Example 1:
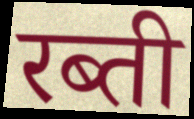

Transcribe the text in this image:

रब्ती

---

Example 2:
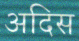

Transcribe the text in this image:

अदिस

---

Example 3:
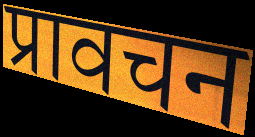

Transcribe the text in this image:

प्रावचन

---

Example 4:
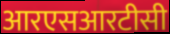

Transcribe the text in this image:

आरएसआरटीसी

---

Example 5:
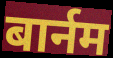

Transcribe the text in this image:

बार्नम